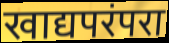
खाद्यपरंपरा